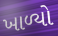
ખાળ્યો